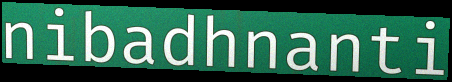
nibadhnanti